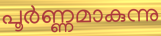
പൂർണ്ണമാകുന്നു